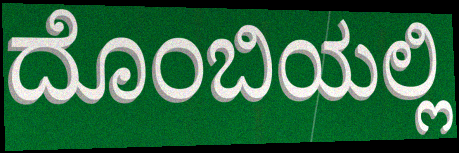
ದೊಂಬಿಯಲ್ಲಿ